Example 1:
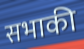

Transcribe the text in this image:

सभाकी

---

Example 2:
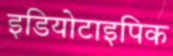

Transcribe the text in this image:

इडियोटाइपिक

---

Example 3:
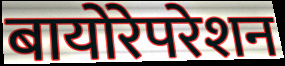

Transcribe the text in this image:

बायोरेपरेशन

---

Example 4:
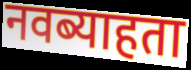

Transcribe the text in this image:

नवब्याहता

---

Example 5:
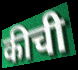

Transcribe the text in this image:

कीची